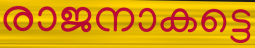
രാജനാകട്ടെ